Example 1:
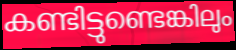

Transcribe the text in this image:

കണ്ടിട്ടുണ്ടെങ്കിലും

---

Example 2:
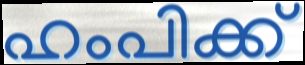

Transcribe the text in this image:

ഹംപിക്ക്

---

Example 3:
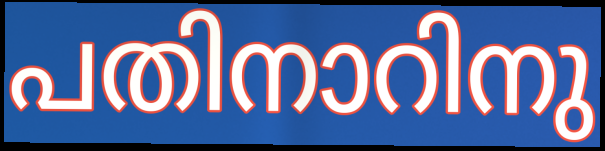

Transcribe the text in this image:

പതിനാറിനു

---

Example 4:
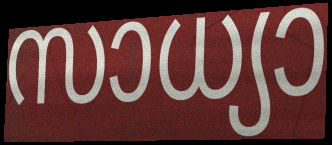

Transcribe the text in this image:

സാധ്യാ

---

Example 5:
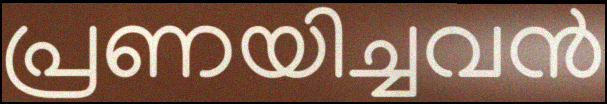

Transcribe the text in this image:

പ്രണയിച്ചവൻ